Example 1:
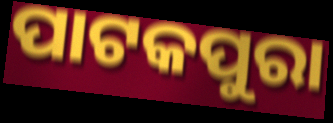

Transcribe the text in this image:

ପାଟକପୁରା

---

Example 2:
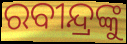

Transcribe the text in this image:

ରବୀନ୍ଦ୍ରଙ୍କୁ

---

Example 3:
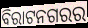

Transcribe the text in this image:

ବିରାଟନଗରର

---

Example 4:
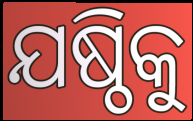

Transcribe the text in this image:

ଯଷ୍ଠିକୁ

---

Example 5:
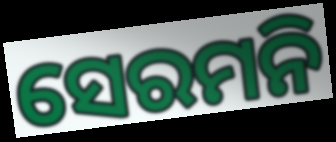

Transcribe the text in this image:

ସେରମନି